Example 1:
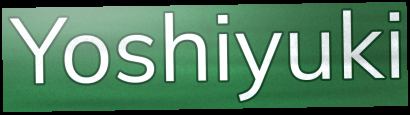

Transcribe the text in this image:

Yoshiyuki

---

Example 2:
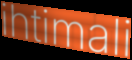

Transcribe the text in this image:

ihtimali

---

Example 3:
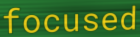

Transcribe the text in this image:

focused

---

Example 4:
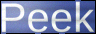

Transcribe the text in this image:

Peek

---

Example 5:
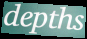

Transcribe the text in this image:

depths